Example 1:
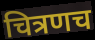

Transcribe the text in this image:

चित्रणच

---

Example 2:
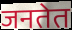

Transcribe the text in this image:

जनतेत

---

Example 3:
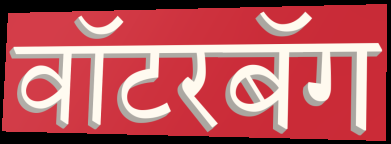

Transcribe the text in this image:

वॉटरबॅग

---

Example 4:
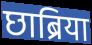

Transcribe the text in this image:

छाब्रिया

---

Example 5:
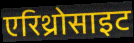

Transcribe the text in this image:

एरिथ्रोसाइट